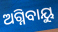
ଅଗ୍ନିବାୟୁ